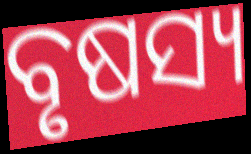
ବୃଷସ୍ୟ